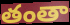
తంతా